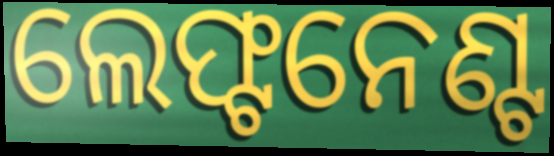
ଲେଫ୍ଟନେଣ୍ଟ